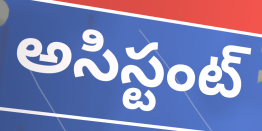
అసిస్టంట్